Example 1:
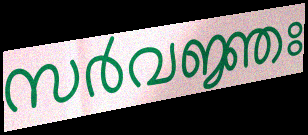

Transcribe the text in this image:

സർവജ്ഞഃ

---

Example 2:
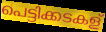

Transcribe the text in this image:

പെട്ടിക്കടകള്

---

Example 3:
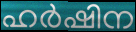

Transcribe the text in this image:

ഹർഷിന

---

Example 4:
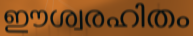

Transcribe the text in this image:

ഈശ്വരഹിതം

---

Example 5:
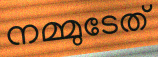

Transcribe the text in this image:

നമ്മുടേത്